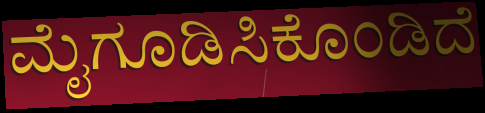
ಮೈಗೂಡಿಸಿಕೊಂಡಿದೆ